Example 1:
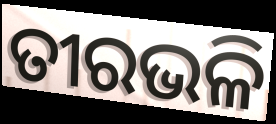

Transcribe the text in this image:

ତୀରଭଳି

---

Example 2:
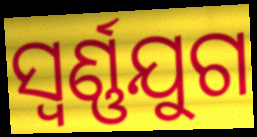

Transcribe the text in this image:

ସ୍ଵର୍ଣ୍ଣଯୁଗ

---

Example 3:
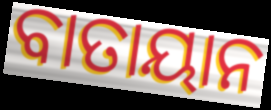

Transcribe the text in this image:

ବାତାୟାନ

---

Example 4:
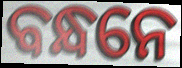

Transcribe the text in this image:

ବନ୍ଧନେ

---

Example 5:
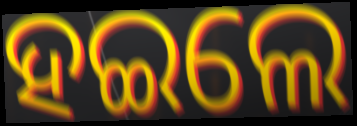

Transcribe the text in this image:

ହଇଲେ